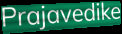
Prajavedike